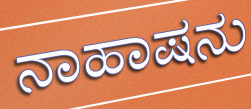
ನಾಹಾಷನು